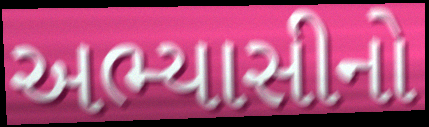
અભ્યાસીનો